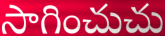
సాగించుచు